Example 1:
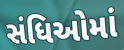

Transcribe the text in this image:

સંધિઓમાં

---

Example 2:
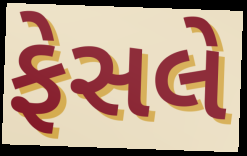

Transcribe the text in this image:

ફેસલે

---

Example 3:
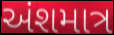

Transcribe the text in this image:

અંશમાત્ર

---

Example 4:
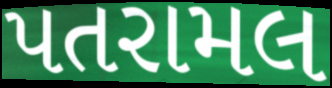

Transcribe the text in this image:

પતરામલ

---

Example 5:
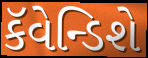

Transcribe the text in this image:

કૅવેન્ડિશે